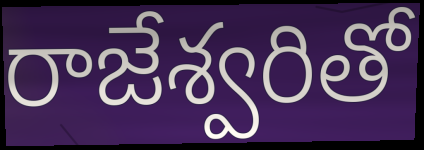
రాజేశ్వరితో